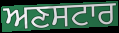
ਅਣਸਟਾਰ